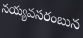
నయ్యవసరంబున